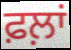
ਫ਼ਲ਼ਾਂ